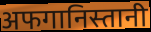
अफगानिस्तानी